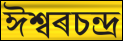
ঈশ্বৰচন্দ্ৰ